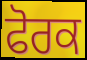
ਫੋਰਕ